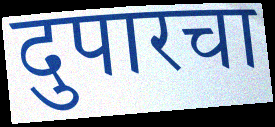
दुपारचा